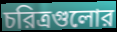
চরিত্রগুলোর